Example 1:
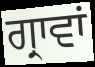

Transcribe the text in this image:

ਗ੍ਰਾਵਾਂ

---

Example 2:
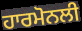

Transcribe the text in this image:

ਹਾਰਮੋਨਲੀ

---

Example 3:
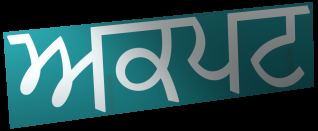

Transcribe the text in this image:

ਅਕਪਟ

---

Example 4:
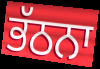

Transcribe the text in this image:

ਭੱਠਨਾ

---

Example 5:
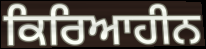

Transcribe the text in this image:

ਕਿਰਿਆਹੀਨ